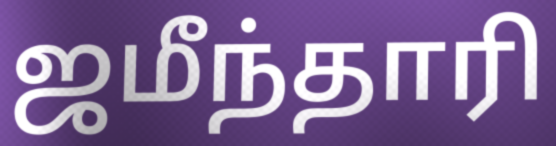
ஜமீந்தாரி